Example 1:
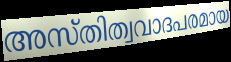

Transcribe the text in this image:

അസ്തിത്വവാദപരമായ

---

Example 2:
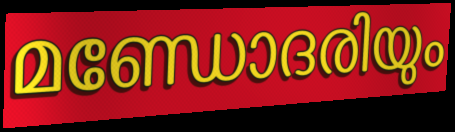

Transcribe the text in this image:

മണ്ഡോദരിയും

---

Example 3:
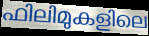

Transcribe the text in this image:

ഫിലിമുകളിലെ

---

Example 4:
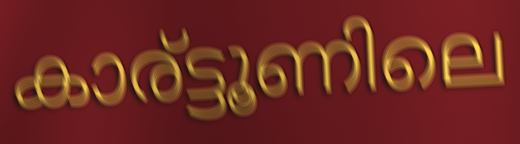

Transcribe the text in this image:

കാര്ട്ടൂണിലെ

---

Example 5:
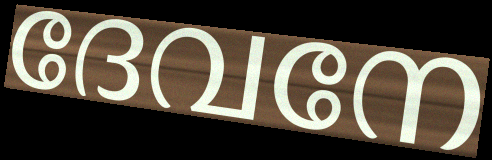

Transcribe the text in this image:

ദേവനേ